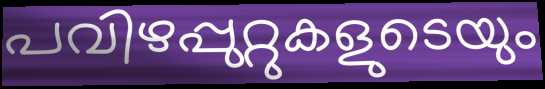
പവിഴപ്പുറ്റുകളുടെയും